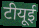
टीयूई